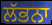
ਲੱਭਨਾ